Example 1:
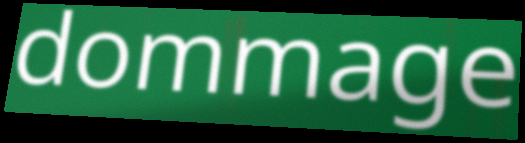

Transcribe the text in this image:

dommage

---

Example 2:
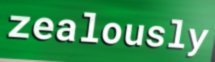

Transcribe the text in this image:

zealously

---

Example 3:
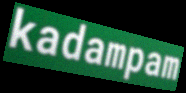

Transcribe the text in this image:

kadampam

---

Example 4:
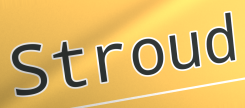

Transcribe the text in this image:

Stroud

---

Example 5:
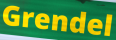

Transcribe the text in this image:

Grendel